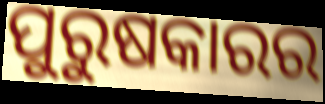
ପୁରୁଷକାରର